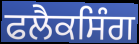
ਫਲੈਕਸਿੰਗ